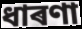
ধাৰণা